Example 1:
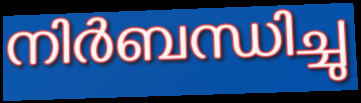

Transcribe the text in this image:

നിർബന്ധിച്ചു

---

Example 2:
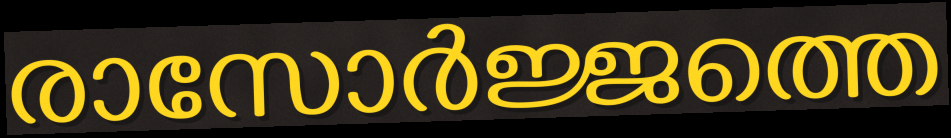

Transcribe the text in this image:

രാസോർജ്ജത്തെ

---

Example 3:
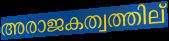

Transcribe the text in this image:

അരാജകത്വത്തില്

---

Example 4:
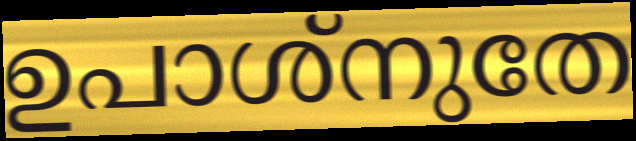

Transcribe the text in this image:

ഉപാശ്നുതേ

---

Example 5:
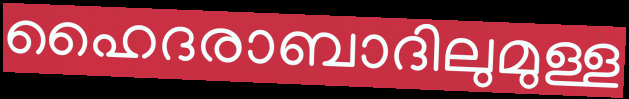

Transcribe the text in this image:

ഹൈദരാബാദിലുമുള്ള